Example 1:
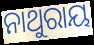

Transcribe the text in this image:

ନାଥୁରାୟ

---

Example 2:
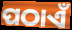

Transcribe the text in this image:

ପଠାଏଁ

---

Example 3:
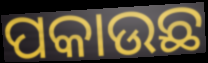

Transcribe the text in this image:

ପକାଉଛ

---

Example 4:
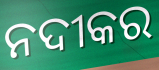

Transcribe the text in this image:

ନଦୀକର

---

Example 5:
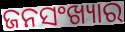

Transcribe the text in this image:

ଜନସଂଖ୍ଯାର